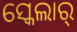
ସ୍କେଲାର୍